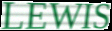
LEWIS